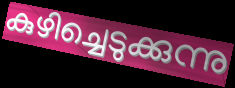
കുഴിച്ചെടുക്കുന്നു